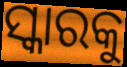
ସ୍କାରକୁ